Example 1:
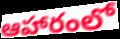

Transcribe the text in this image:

ఆహారంలో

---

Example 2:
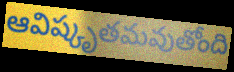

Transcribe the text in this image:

ఆవిష్కృతమవుతోంది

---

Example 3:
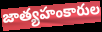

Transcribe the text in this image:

జాత్యహంకారుల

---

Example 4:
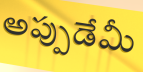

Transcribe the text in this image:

అప్పుడేమీ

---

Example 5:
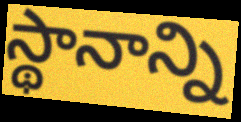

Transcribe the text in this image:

స్థానాన్ని